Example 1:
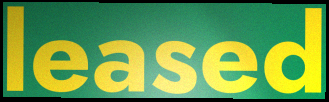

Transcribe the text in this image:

leased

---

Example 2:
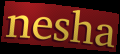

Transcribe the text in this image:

nesha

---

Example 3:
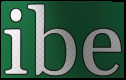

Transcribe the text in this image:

ibe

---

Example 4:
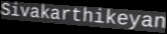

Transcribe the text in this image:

Sivakarthikeyan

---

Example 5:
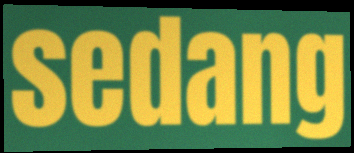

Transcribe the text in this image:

sedang